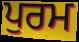
ਪੁਰਮ